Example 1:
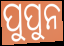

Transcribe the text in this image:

ପୁପୁନ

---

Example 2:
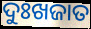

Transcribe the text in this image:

ଦୁଃଖଜାତ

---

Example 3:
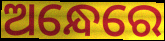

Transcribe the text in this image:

ଅନ୍ଧେରେ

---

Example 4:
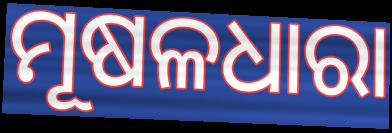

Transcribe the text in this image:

ମୂଷଳଧାରା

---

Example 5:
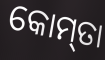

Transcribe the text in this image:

କୋମ୍‌ତା